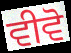
ਵੀਵੋ